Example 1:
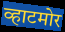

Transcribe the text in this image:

व्हाटमोर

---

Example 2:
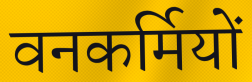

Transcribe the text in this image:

वनकर्मियों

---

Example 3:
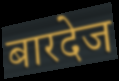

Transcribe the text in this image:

बारदेज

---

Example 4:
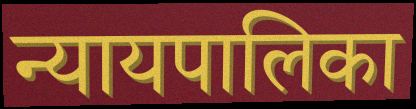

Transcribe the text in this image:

न्यायपालिका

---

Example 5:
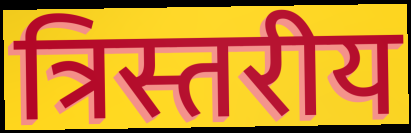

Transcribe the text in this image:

त्रिस्तरीय